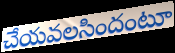
చేయవలసిందంటూ